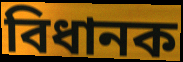
বিধানক